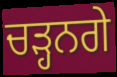
ਚੜ੍ਹਨਗੇ